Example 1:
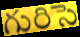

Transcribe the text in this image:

గురిసె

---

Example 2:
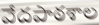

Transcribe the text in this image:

వేదపాఠశాల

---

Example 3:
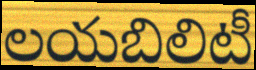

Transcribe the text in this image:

లయబిలిటీ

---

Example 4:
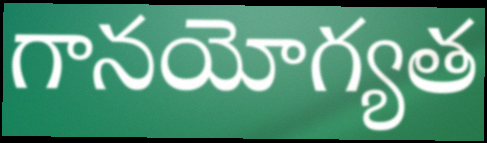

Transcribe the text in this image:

గానయోగ్యత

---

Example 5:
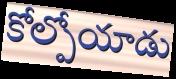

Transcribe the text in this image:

కోల్పోయాడు